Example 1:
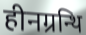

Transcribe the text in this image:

हीनग्रन्थि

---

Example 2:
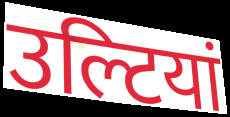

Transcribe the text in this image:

उल्‍टियां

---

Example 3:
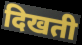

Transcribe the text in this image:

दिखती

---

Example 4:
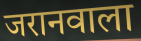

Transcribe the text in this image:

जरानवाला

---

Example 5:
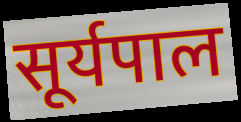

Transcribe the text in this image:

सूर्यपाल